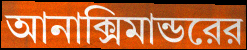
আনাক্সিমান্ডরের